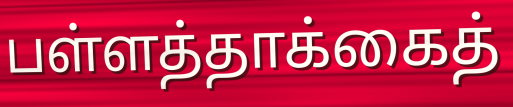
பள்ளத்தாக்கைத்